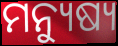
ମନ୍ୟୁଷ୍ୟ